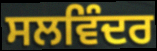
ਸਲਵਿੰਦਰ